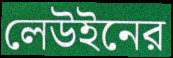
লেউইনের